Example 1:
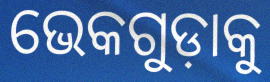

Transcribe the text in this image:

ଭେକଗୁଡ଼ାକୁ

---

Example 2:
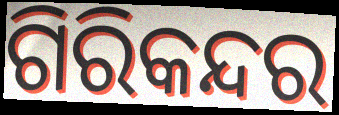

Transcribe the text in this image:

ଗିରିକନ୍ଦର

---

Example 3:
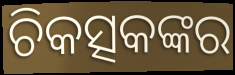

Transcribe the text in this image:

ଚିକତ୍ସକଙ୍କର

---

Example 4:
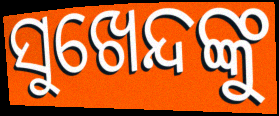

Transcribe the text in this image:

ସୁଖେନ୍ଦଙ୍କୁ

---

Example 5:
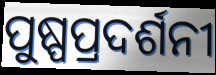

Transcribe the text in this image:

ପୁଷ୍ପପ୍ରଦର୍ଶନୀ